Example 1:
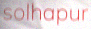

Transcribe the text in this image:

solhapur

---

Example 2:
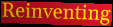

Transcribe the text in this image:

Reinventing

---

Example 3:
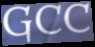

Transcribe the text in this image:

GCC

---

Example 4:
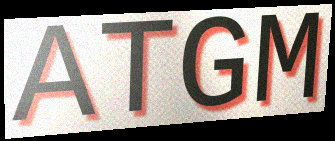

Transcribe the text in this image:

ATGM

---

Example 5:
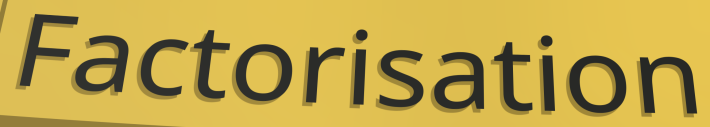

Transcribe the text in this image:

Factorisation